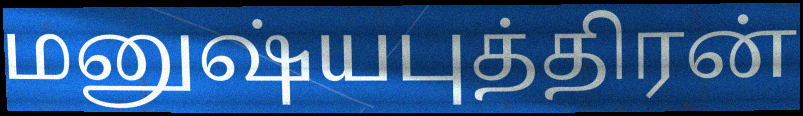
மனுஷ்யபுத்திரன்